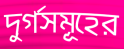
দুর্গসমূহের